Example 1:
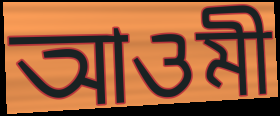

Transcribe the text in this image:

আওমী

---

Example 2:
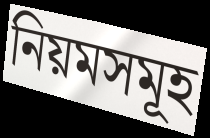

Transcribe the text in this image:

নিয়মসমূহ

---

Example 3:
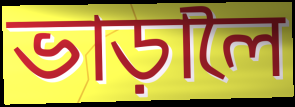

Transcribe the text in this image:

ভাড়ালৈ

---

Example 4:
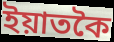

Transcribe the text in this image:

ইয়াতকৈ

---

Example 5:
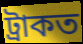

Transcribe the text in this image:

ট্ৰাকত